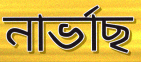
নাৰ্ভাছ